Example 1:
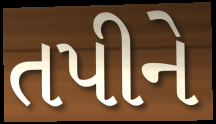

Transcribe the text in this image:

તપીને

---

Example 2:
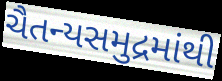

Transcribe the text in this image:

ચૈતન્યસમુદ્રમાંથી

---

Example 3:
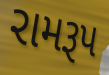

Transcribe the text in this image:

રામરૂપ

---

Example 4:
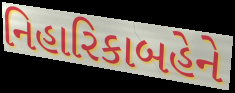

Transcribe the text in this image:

નિહારિકાબહેને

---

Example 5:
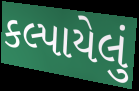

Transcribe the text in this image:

કલ્પાયેલું